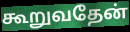
கூறுவதேன்